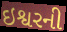
ઇશ્વરની